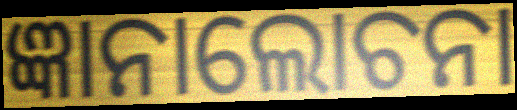
ଜ୍ଞାନାଲୋଚନା